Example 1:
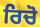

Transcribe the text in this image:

ਰਿਚੋ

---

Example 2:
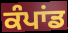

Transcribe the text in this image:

ਕੰਪਾਂਡ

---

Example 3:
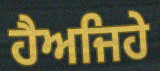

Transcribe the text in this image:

ਹੈਅਜਿਹੇ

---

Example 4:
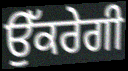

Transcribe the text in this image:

ਉੱਕਰੇਗੀ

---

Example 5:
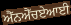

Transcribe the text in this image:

ਐੱਨਐੱਚਏਆਈ